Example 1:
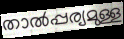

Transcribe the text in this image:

താൽപ്പര്യമുള്ള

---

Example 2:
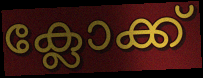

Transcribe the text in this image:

ക്ലോക്ക്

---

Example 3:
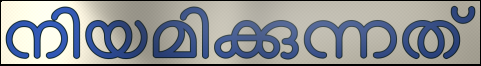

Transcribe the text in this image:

നിയമിക്കുന്നത്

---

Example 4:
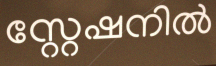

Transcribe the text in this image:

സ്റ്റേഷനിൽ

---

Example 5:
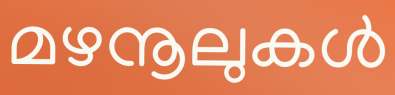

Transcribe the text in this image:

മഴനൂലുകൾ